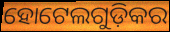
ହୋଟେଲଗୁଡ଼ିକର